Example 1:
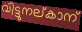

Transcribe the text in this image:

വിട്ടുനല്കാന്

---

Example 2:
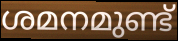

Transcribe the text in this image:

ശമനമുണ്ട്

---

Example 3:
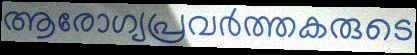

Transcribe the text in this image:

ആരോഗ്യപ്രവർത്തകരുടെ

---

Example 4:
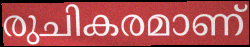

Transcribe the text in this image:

രുചികരമാണ്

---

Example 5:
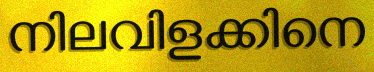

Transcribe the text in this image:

നിലവിളക്കിനെ